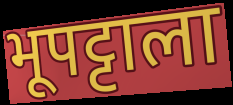
भूपट्टाला